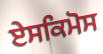
ਏਸਕਿਮੋਸ